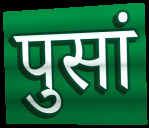
पुसां